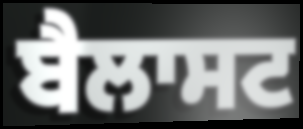
ਬੈਲਾਸਟ